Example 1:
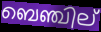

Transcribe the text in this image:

ബെഞ്ചില്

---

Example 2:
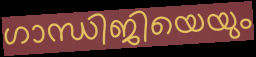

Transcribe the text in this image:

ഗാന്ധിജിയെയും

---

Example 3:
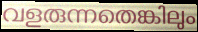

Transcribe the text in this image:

വളരുന്നതെങ്കിലും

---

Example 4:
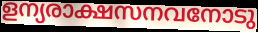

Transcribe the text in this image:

ളന്യരാക്ഷസനവനോടു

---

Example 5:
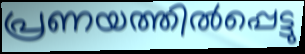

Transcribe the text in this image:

പ്രണയത്തിൽപ്പെട്ടു